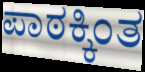
ಪಾಠಕ್ಕಿಂತ